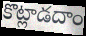
కొట్లాడదాం